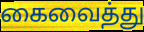
கைவைத்து